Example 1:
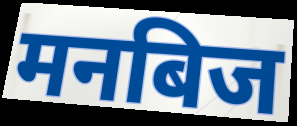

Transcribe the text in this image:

मनबिज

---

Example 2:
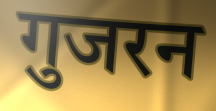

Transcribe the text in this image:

गुजरन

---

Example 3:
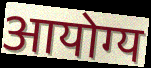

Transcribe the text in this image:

आयोग्य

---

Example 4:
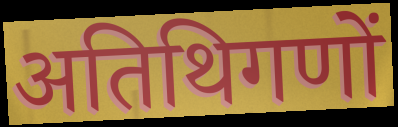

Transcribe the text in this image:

अतिथिगणों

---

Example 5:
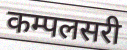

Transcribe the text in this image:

कम्पलसरी